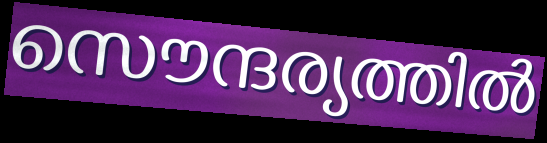
സൌന്ദര്യത്തിൽ